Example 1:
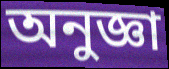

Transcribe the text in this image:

অনুজ্ঞা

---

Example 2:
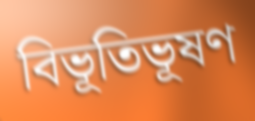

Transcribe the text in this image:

বিভূতিভূষণ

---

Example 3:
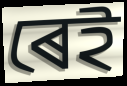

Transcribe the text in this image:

ৰেই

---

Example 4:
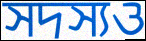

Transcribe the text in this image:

সদস্যও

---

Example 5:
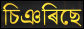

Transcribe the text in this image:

চিঞৰিছে